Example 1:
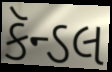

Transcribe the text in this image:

કૅન્ડલ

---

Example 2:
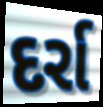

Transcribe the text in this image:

દર્રા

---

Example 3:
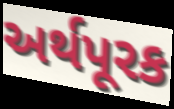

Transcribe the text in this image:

અર્થપૂરક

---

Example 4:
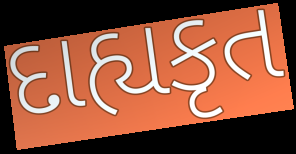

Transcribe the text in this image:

દાહ્યકૃત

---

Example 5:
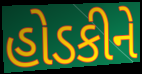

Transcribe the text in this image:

હોડકીને